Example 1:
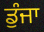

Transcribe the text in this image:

ਡੁੰਜਾ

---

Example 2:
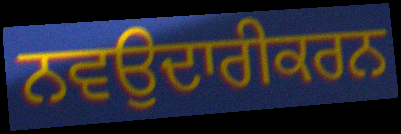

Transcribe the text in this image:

ਨਵਉਦਾਰੀਕਰਨ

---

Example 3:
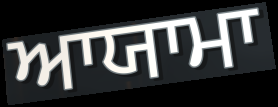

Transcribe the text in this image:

ਆਯਾਮਾ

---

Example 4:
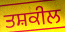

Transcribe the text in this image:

ਤਸ਼ਕੀਲ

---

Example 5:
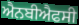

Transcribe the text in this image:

ਐਨਬੀਐਫਸੀ